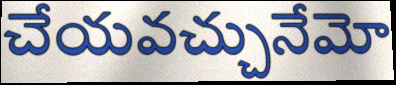
చేయవచ్చునేమో